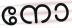
നോ